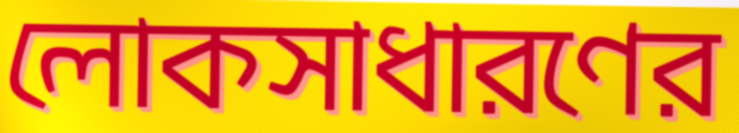
লোকসাধারণের